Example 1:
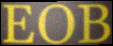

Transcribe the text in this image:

EOB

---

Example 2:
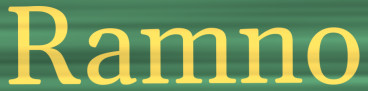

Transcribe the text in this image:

Ramno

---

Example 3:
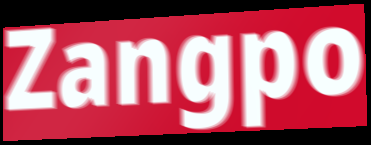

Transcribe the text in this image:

Zangpo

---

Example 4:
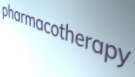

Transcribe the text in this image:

pharmacotherapy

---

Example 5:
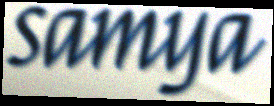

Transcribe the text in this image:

samya